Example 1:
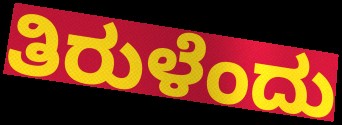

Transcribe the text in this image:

ತಿರುಳೆಂದು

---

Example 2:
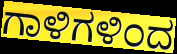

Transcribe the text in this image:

ಗಾಳಿಗಳಿಂದ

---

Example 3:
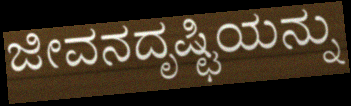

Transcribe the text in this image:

ಜೀವನದೃಷ್ಟಿಯನ್ನು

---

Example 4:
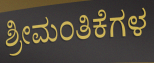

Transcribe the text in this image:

ಶ್ರೀಮಂತಿಕೆಗಳ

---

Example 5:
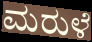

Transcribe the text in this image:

ಮರುಳೆ